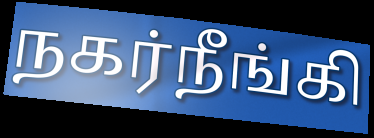
நகர்நீங்கி